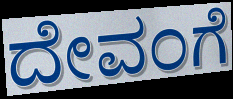
ದೇವಂಗೆ